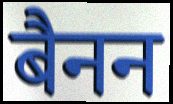
बैनन